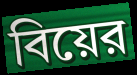
বিয়ের